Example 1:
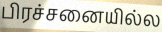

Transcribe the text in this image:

பிரச்சனையில்ல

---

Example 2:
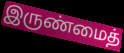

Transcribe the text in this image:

இருண்மைத்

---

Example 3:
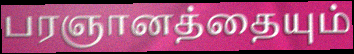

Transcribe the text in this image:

பரஞானத்தையும்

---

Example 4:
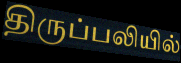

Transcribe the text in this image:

திருப்பலியில்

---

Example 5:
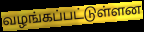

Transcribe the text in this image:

வழங்கப்பட்டுள்ளன